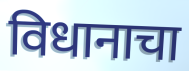
विधानाचा